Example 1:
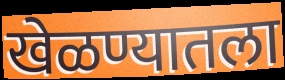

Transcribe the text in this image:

खेळण्यातला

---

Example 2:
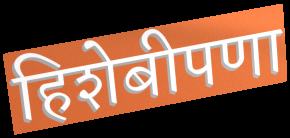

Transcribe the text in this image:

हिशेबीपणा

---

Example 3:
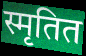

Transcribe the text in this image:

स्मृतित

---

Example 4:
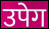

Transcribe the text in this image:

उपेग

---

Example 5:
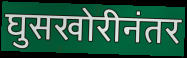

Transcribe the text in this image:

घुसखोरीनंतर